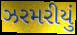
ઝરમરીયું